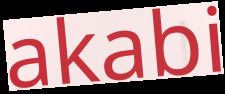
akabi